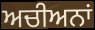
ਅਚੀਅਨਾਂ